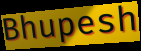
Bhupesh